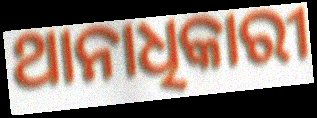
ଥାନାଧିକାରୀ